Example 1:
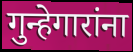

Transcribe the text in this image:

गुन्हेगारांना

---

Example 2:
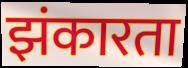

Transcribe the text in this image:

झंकारता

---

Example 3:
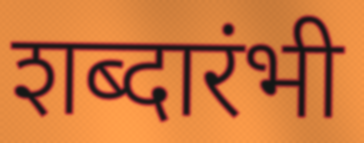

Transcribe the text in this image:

शब्दारंभी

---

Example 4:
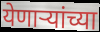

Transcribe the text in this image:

येणाऱ्यांच्या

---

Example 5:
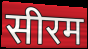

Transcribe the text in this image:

सीरम